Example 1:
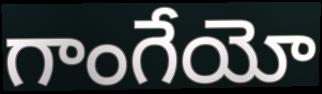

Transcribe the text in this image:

గాంగేయో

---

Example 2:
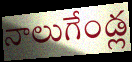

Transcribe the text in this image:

నాలుగేండ్ల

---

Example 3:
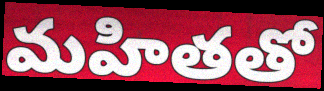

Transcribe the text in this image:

మహితతో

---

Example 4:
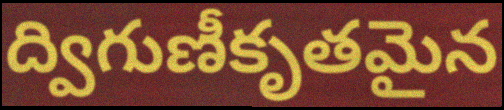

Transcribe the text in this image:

ద్విగుణీకృతమైన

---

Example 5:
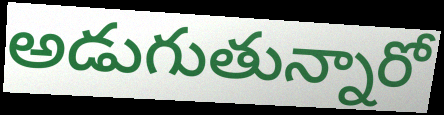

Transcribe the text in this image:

అడుగుతున్నారో